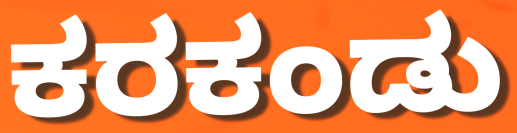
ಕರಕಂಡು